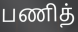
பணித்